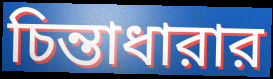
চিন্তাধারার